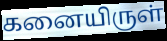
கனையிருள்